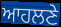
ਆਹਲਣੇ